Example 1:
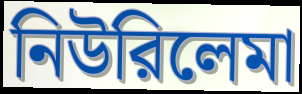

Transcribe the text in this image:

নিউরিলেমা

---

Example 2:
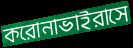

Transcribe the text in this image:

করোনাভাইরাসে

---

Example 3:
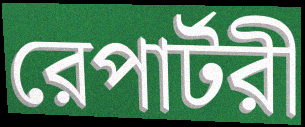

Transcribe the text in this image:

রেপার্টরী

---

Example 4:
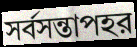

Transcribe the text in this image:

সর্বসন্তাপহর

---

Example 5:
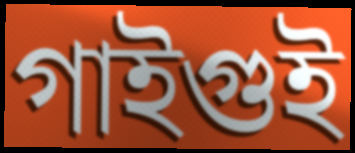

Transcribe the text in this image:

গাইগুই